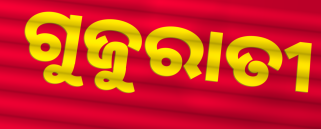
ଗୁଜୁରାତୀ